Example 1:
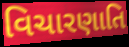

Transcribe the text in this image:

વિચારણાતિ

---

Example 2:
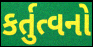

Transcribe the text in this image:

કર્તુત્વનો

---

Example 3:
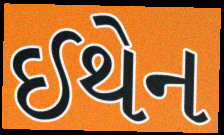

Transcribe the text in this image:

ઈથેન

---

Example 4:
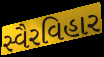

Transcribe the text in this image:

સ્વૈરવિહાર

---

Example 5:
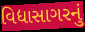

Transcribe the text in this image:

વિદ્યાસાગરનું